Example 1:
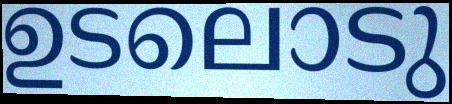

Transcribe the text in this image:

ഉടലൊടു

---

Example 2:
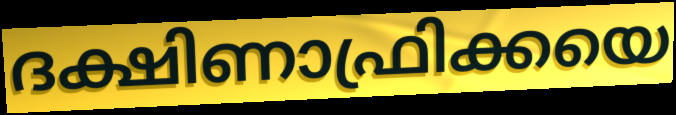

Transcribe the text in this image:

ദക്ഷിണാഫ്രിക്കയെ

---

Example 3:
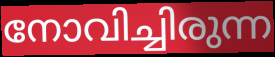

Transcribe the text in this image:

നോവിച്ചിരുന്ന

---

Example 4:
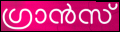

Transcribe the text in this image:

ഗ്രാൻസ്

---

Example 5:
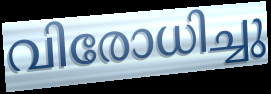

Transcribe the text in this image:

വിരോധിച്ചു